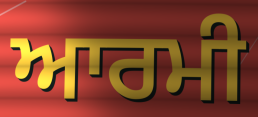
ਆਰਮੀ